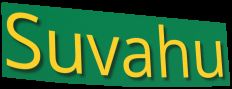
Suvahu